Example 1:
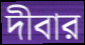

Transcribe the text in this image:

দীবার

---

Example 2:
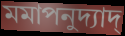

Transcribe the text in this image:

মমাপনুদ্যাদ্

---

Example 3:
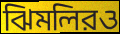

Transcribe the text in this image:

ঝিমলিরও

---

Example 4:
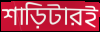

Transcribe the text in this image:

শাড়িটারই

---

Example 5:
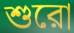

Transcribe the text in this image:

শুরো